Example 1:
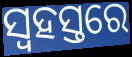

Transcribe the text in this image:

ସ୍ୱହସ୍ତରେ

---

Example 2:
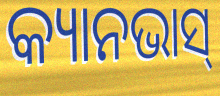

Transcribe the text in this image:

କ୍ୟାନଭାସ୍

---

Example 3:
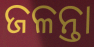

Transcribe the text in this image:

ଜଳନ୍ତା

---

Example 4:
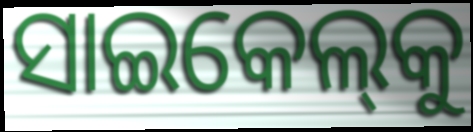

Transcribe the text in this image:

ସାଇକେଲ୍‌କୁ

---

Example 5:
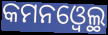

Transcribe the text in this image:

କମନଓ୍ବେଲ୍ଥ